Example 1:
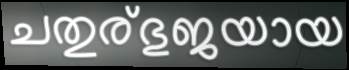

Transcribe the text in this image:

ചതുര്ഭുജയായ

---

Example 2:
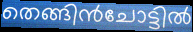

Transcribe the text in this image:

തെങ്ങിൻചോട്ടിൽ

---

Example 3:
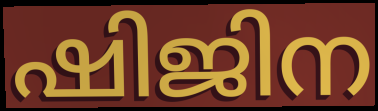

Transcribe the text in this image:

ഷിജിന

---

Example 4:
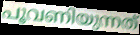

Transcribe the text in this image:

പൂവണിയുന്നത്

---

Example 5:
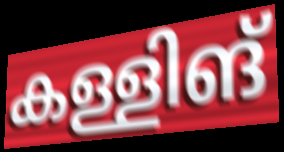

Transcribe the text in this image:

കള്ളിങ്